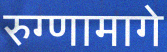
रुग्णामागे